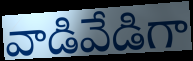
వాడివేడిగా